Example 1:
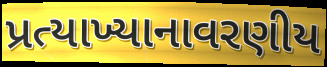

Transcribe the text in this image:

પ્રત્યાખ્યાનાવરણીય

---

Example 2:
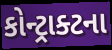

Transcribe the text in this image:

કોન્ટ્રાક્ટના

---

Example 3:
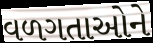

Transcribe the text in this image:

વળગતાઓને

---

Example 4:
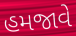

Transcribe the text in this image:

હમજાવે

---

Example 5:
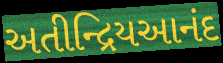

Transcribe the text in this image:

અતીન્દ્રિયઆનંદ